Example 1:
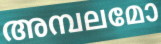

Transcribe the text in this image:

അമ്പലമോ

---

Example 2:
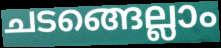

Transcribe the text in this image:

ചടങ്ങെല്ലാം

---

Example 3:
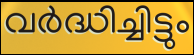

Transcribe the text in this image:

വർദ്ധിച്ചിട്ടും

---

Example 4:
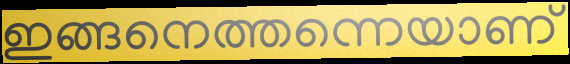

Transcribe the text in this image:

ഇങ്ങനെത്തന്നെയാണ്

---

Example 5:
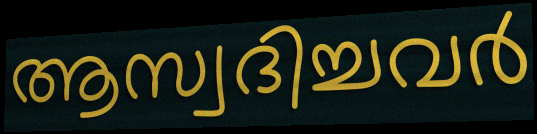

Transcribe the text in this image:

ആസ്വദിച്ചവർ